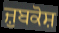
ਜ਼ੁਬਕੋਸ਼